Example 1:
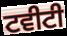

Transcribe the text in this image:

ਟਵੀਟੀ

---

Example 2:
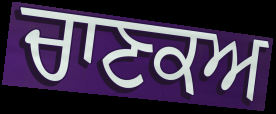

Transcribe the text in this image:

ਚਾਣਕਅ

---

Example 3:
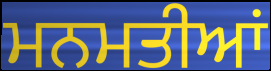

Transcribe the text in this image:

ਮਨਮਤੀਆਂ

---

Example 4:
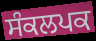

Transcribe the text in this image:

ਸੰਕਲਪਕ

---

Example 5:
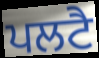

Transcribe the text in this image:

ਪਲਟੈ